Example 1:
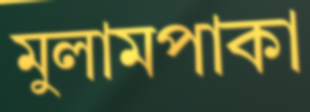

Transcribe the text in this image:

মুলামপাকা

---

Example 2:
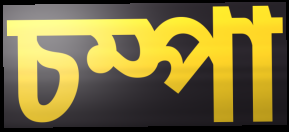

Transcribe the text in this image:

চম্পা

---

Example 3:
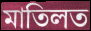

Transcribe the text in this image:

মাতিলত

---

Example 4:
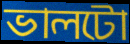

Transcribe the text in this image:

ভালটো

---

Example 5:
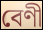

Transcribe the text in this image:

বেণী